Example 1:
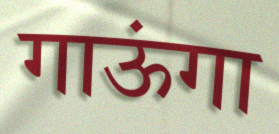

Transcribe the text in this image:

गाऊंगा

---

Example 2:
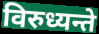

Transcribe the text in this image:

विरुध्यन्ते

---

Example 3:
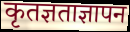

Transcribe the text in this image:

कृतज्ञताज्ञापन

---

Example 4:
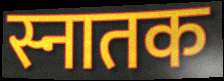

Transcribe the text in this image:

स्नातक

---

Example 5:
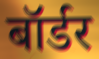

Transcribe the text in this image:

बॉर्डर